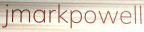
jmarkpowell